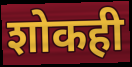
शोकही